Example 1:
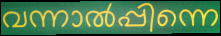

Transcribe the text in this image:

വന്നാൽപ്പിന്നെ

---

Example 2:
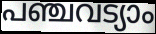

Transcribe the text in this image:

പഞ്ചവട്യാം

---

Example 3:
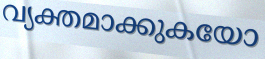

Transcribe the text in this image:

വ്യക്തമാക്കുകയോ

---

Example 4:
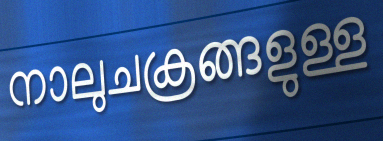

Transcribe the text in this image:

നാലുചക്രങ്ങളുള്ള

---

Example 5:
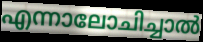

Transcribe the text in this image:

എന്നാലോചിച്ചാൽ